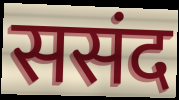
ससंद